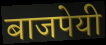
बाजपेयी